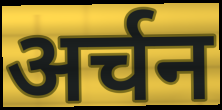
अर्चन